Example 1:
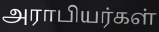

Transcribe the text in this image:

அராபியர்கள்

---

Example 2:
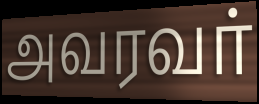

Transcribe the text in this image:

அவரவர்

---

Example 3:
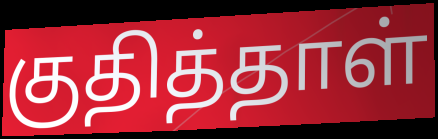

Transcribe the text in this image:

குதித்தாள்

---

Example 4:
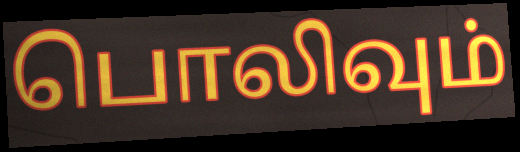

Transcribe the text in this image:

பொலிவும்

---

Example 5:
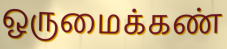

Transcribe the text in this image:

ஒருமைக்கண்